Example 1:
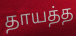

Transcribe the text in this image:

தாயத்த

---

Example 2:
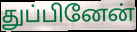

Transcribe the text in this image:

துப்பினேன்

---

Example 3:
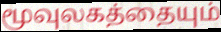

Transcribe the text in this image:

மூவுலகத்தையும்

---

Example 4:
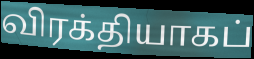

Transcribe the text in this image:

விரக்தியாகப்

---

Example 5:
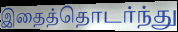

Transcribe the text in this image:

இதைத்தொடர்ந்து